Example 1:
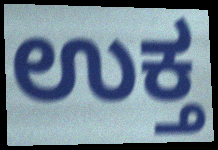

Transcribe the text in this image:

ಉಕ್ತ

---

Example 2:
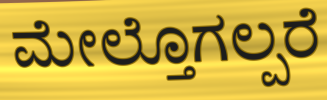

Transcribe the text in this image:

ಮೇಲ್ತೊಗಲ್ಪರೆ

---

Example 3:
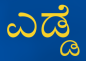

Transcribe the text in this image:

ಎಡ್ಡೆ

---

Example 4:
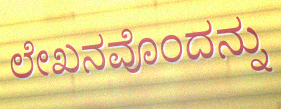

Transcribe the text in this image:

ಲೇಖನವೊಂದನ್ನು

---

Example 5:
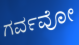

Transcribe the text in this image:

ಗರ್ವವೋ